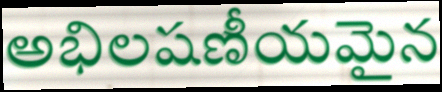
అభిలషణీయమైన